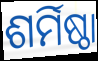
ଶର୍ମିଷ୍ଠା